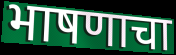
भाषणाचा